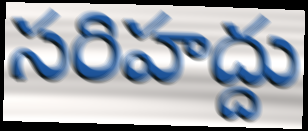
సరిహద్దు